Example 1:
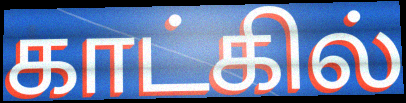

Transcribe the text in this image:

காட்கில்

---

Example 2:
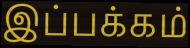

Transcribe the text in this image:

இப்பக்கம்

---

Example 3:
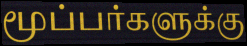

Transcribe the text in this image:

மூப்பர்களுக்கு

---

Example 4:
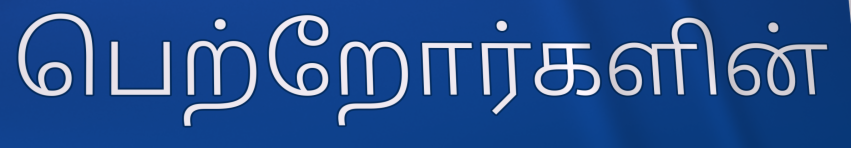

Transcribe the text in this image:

பெற்றோர்களின்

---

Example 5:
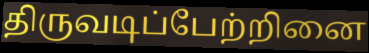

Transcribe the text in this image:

திருவடிப்பேற்றினை